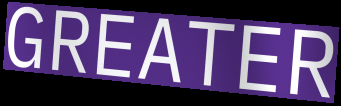
GREATER